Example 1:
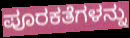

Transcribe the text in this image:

ಪೂರಕತೆಗಳನ್ನು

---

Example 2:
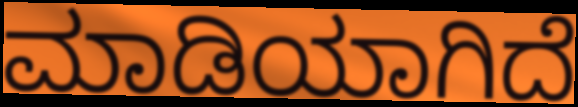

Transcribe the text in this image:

ಮಾಡಿಯಾಗಿದೆ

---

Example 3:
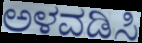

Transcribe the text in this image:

ಅಳವಡಿಸಿ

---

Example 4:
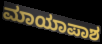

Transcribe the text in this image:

ಮಾಯಾಪಾಶ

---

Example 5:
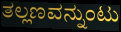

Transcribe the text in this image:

ತಲ್ಲಣವನ್ನುಂಟು